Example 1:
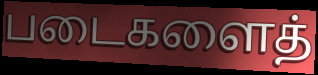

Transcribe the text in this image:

படைகளைத்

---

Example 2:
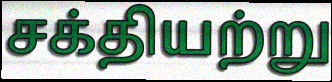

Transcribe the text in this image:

சக்தியற்று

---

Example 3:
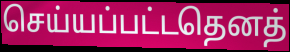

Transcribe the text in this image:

செய்யப்பட்டதெனத்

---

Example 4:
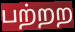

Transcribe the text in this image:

பற்றற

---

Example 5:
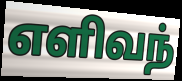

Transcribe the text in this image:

எளிவந்